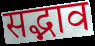
सद्भाव